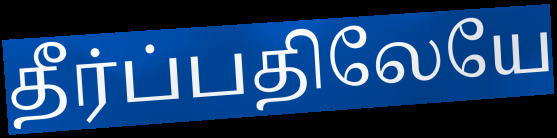
தீர்ப்பதிலேயே